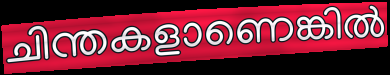
ചിന്തകളാണെങ്കിൽ